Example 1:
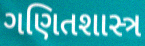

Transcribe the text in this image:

ગણિતશાસ્ત્ર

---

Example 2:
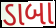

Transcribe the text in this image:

ડાબા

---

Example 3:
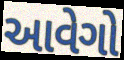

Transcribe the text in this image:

આવેગો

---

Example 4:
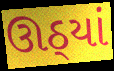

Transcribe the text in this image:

ઊઠ્યાં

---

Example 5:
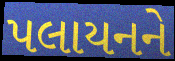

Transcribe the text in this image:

પલાયનને